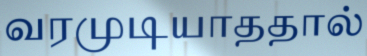
வரமுடியாததால்